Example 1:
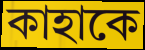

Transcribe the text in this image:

কাহাকে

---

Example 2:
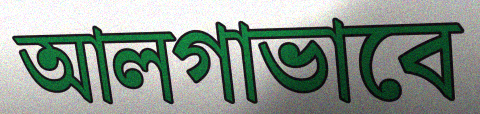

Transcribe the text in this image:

আলগাভাবে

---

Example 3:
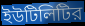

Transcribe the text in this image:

ইউটিলিটির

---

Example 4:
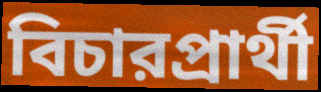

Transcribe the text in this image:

বিচারপ্রার্থী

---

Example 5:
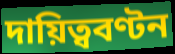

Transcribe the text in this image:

দায়িত্ববণ্টন